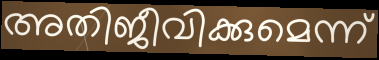
അതിജീവിക്കുമെന്ന്